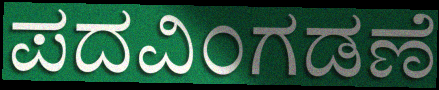
ಪದವಿಂಗಡಣೆ